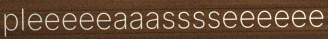
pleeeeeaaasssseeeeee